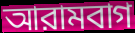
আরামবাগ